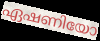
ഏഷണിയോ